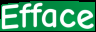
Efface